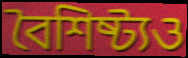
বৈশিষ্ট্যও